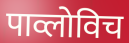
पाव्लोविच